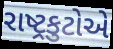
રાષ્ટ્રકુટોએ